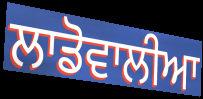
ਲਾਡੋਵਾਲੀਆ